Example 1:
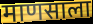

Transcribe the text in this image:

माणसाला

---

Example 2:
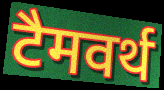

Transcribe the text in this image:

टैमवर्थ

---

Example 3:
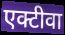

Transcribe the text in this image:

एक्टीवा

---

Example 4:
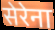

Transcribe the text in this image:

सेरेना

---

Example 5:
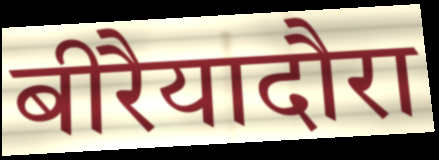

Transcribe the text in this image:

बीरैयादौरा